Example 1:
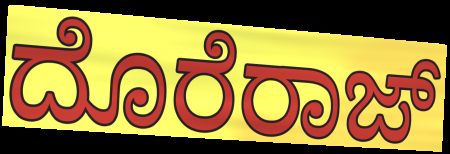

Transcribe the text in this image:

ದೊರೆರಾಜ್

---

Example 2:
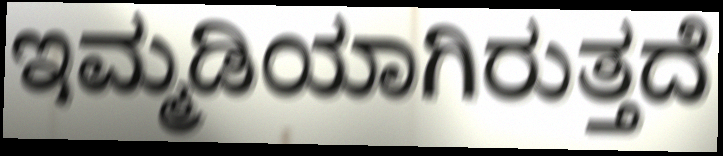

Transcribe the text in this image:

ಇಮ್ಮಡಿಯಾಗಿರುತ್ತದೆ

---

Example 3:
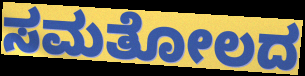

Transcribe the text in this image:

ಸಮತೋಲದ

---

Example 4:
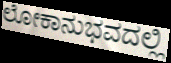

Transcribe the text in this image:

ಲೋಕಾನುಭವದಲ್ಲಿ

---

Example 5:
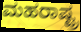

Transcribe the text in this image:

ಮಹರಾಷ್ಟ್ರ